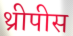
थ्रीपीस